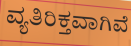
ವ್ಯತಿರಿಕ್ತವಾಗಿವೆ